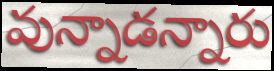
వున్నాడన్నారు